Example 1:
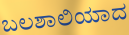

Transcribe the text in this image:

ಬಲಶಾಲಿಯಾದ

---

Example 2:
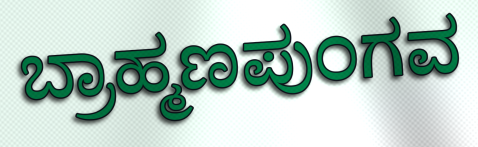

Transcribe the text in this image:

ಬ್ರಾಹ್ಮಣಪುಂಗವ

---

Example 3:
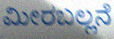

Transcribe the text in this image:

ಮೀರಬಲ್ಲನೆ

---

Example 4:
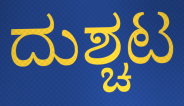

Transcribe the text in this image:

ದುಶ್ಚಟ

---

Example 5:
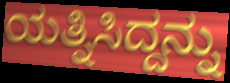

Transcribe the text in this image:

ಯತ್ನಿಸಿದ್ದನ್ನು